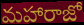
మహారాజో